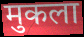
मुकला